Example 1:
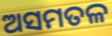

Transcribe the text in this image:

ଅସମତଳ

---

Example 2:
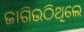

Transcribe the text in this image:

ଜାଗିଉଠିଥିଲେ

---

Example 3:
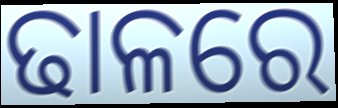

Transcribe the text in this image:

ଢାଳରେ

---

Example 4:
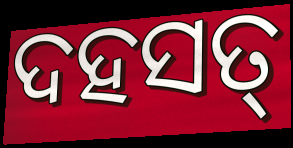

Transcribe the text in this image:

ଦହସତ୍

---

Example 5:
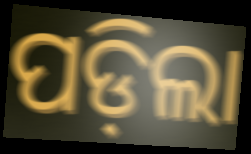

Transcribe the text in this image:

ପଡ଼ିଲା